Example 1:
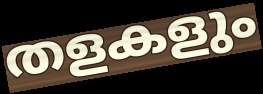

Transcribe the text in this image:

തളകളും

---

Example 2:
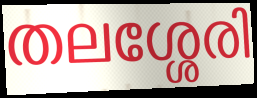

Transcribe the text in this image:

തലശ്ശേരി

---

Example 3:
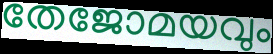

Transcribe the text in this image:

തേജോമയവും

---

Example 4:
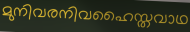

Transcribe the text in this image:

മുനിവരനിവഹൈസ്തവാഥ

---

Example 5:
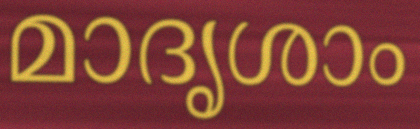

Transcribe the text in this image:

മാദൃശാം